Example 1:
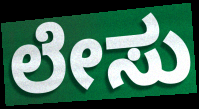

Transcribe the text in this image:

ಲೇಸು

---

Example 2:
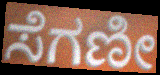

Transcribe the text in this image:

ಸೆಗಣೀ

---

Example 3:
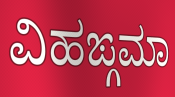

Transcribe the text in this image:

ವಿಹಙ್ಗಮಾ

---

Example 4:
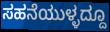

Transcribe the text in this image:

ಸಹನೆಯುಳ್ಳದ್ದೂ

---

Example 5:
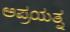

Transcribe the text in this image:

ಅಪ್ರಯತ್ನ